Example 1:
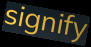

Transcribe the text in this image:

signify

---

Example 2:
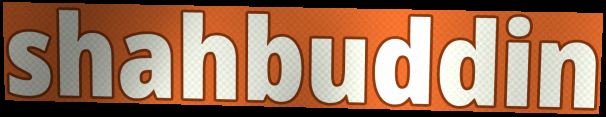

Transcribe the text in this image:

shahbuddin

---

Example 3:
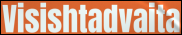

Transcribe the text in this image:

Visishtadvaita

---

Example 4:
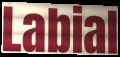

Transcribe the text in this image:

Labial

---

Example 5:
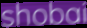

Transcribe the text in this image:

shobai